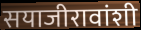
सयाजीरावांशी